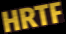
HRTF